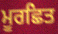
ਮੂਰਛਿਤ